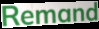
Remand